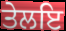
ਤੇਲਇ